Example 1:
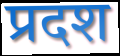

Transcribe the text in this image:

प्रदश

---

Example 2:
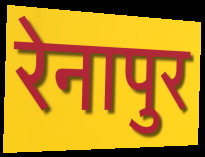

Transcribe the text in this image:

रेनापुर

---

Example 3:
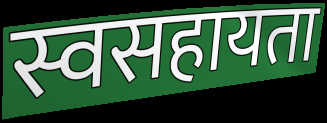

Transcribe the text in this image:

स्‍वसहायता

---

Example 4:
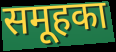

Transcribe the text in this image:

समूहका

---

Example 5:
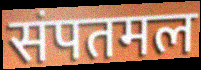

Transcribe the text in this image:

संपतमल